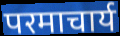
परमाचार्य